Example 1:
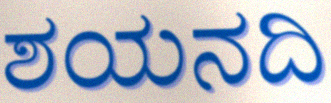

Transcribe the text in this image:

ಶಯನದಿ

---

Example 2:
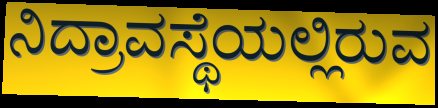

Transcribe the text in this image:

ನಿದ್ರಾವಸ್ಥೆಯಲ್ಲಿರುವ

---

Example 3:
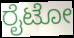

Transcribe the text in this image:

ರೈಟೋ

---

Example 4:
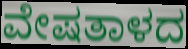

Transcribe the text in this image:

ವೇಷತಾಳದ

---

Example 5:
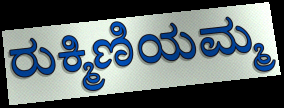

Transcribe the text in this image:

ರುಕ್ಮಿಣಿಯಮ್ಮ